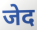
जेद